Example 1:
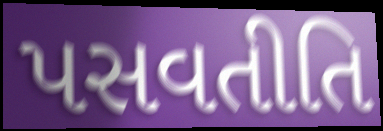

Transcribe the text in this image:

પસવતીતિ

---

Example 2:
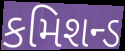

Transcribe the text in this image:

કમિશન્ડ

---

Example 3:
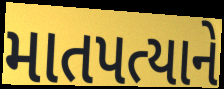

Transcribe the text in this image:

માતપત્યાને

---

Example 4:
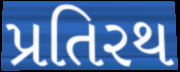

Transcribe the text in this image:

પ્રતિરથ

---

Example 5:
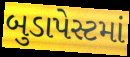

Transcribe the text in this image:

બુડાપેસ્ટમાં